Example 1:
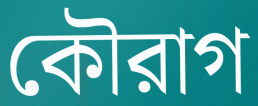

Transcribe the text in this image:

কৌরাগ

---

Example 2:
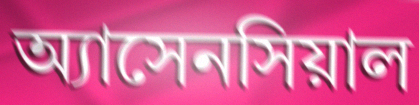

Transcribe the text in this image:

অ্যাসেনসিয়াল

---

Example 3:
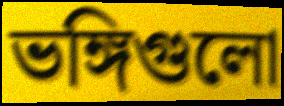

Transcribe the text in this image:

ভঙ্গিগুলো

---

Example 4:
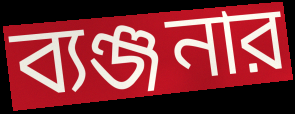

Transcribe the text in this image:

ব্যঞ্জনার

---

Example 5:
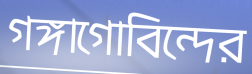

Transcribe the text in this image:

গঙ্গাগোবিন্দের